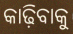
କାଢ଼ିବାକୁ